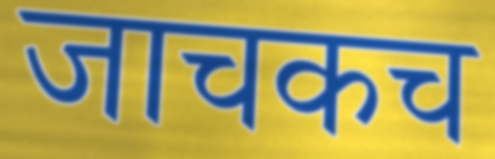
जाचकच